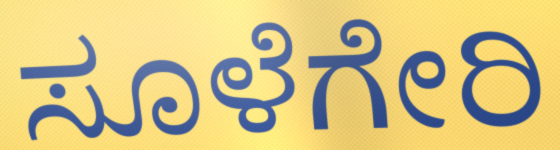
ಸೂಳೆಗೇರಿ